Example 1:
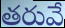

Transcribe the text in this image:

తరువే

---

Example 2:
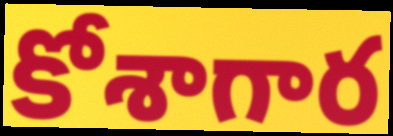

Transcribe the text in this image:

కోశాగార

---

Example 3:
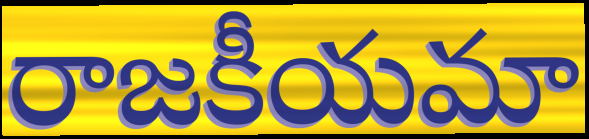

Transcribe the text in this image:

రాజకీయమా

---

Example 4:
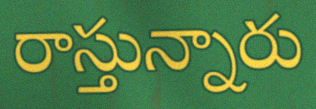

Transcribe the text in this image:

రాస్తున్నారు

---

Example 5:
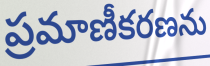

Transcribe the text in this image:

ప్రమాణీకరణను